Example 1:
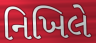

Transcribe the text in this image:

નિખિલે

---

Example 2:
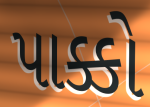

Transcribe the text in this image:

પાક્કો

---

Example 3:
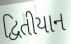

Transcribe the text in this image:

દ્વિતીયાન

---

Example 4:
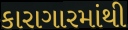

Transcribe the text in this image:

કારાગારમાંથી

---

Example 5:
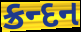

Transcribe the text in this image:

ક્રન્દન